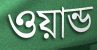
ওয়ান্ড